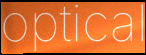
optical